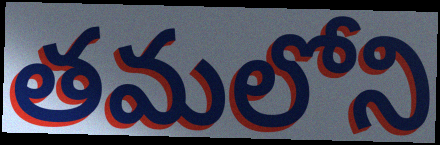
తమలోని